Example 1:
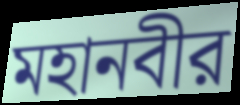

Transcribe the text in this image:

মহানবীর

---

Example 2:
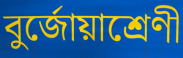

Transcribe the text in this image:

বুর্জোয়াশ্রেণী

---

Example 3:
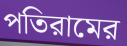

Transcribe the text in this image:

পতিরামের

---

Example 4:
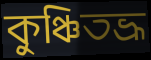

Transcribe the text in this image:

কুঞ্চিতভ্রূ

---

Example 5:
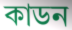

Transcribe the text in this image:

কাডন